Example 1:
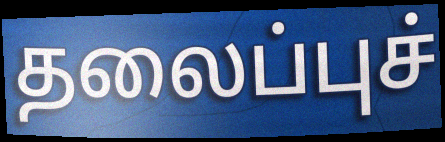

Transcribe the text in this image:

தலைப்புச்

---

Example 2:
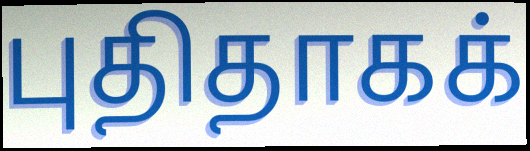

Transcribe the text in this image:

புதிதாகக்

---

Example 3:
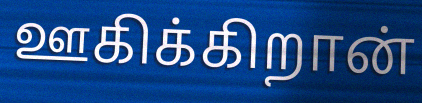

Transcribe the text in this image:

ஊகிக்கிறான்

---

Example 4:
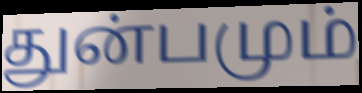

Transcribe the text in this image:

துன்பமும்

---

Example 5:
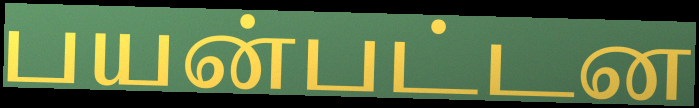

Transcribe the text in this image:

பயன்பட்டன